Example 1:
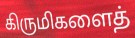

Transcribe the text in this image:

கிருமிகளைத்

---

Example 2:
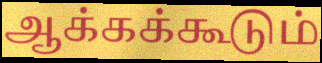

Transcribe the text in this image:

ஆக்கக்கூடும்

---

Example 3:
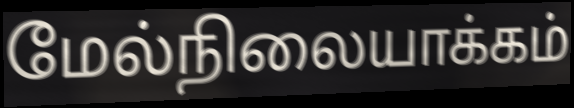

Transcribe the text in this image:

மேல்நிலையாக்கம்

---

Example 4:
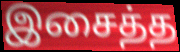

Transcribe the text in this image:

இசைத்த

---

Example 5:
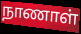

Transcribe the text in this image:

நாணாள்